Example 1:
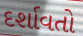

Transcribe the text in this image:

દર્શાવતો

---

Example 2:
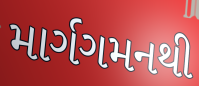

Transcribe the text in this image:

માર્ગગમનથી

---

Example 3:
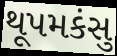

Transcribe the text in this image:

થૂપમકંસુ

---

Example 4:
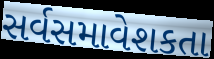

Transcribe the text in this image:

સર્વસમાવેશકતા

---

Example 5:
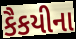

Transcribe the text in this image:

કૈકયીના